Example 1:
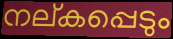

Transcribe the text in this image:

നല്കപ്പെടും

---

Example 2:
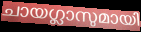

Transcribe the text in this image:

ചായഗ്ലാസുമായി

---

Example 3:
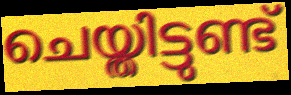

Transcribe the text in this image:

ചെയ്തിട്ടുണ്ട്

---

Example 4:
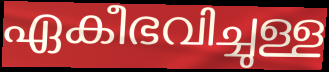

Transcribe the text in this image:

ഏകീഭവിച്ചുള്ള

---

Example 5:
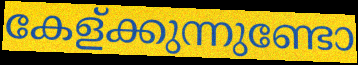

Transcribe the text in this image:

കേള്ക്കുന്നുണ്ടോ